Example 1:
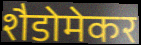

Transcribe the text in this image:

शैडोमेकर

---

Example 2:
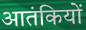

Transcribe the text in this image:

आतंकियों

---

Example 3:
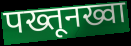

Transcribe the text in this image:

पख्तूनख्वा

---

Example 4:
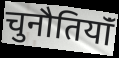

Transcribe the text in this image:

चुनौतियॉं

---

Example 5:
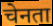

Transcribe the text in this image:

चेनता